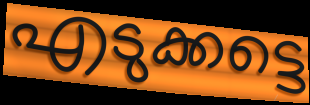
എടുക്കട്ടെ